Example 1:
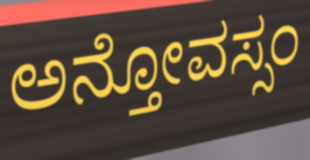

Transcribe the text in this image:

ಅನ್ತೋವಸ್ಸಂ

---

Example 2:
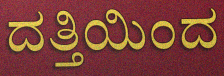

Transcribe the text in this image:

ದತ್ತಿಯಿಂದ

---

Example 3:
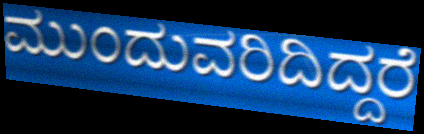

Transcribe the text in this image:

ಮುಂದುವರಿದಿದ್ದರೆ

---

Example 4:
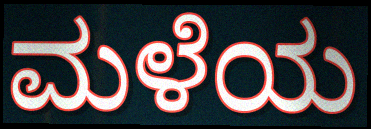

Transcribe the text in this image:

ಮಳೆಯ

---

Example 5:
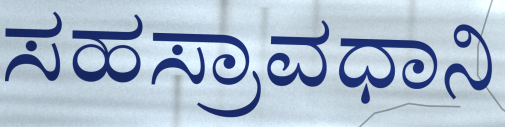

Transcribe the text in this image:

ಸಹಸ್ರಾವಧಾನಿ